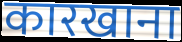
कारखाना